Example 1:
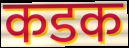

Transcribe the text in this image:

कडक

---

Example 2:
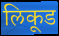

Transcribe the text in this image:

लिकूड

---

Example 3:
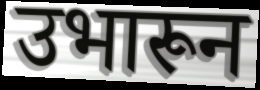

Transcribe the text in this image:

उभारून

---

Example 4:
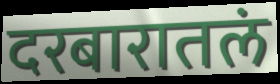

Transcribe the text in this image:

दरबारातलं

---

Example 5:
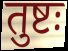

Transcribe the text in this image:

तुष्टः